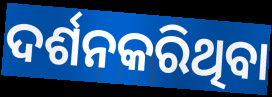
ଦର୍ଶନକରିଥିବା